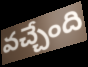
వచ్చేంది